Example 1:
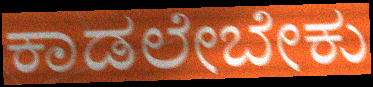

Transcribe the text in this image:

ಕಾಡಲೇಬೇಕು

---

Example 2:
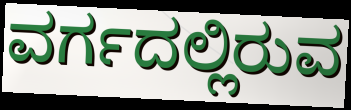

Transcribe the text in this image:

ವರ್ಗದಲ್ಲಿರುವ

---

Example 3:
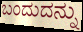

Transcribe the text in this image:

ಬಂದುದನ್ನು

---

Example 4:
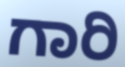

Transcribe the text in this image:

ಗಾರಿ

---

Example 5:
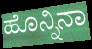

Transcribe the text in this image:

ಹೊನ್ನಿನಾ